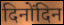
दिनोंदिन